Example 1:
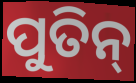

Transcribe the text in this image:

ପୁତିନ୍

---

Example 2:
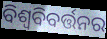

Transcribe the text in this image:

ବିଶ୍ଵବିବର୍ତ୍ତନର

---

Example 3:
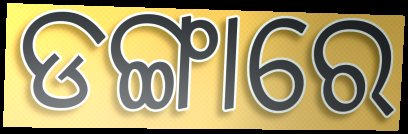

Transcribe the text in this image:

ଡଙ୍ଗାରେ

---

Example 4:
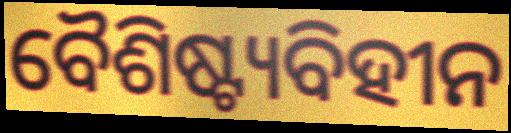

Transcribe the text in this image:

ବୈଶିଷ୍ଟ୍ୟବିହୀନ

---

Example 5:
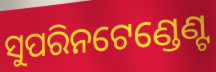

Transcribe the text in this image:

ସୁପରିନଟେଣ୍ଡେଣ୍ଟ